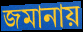
জমানায়